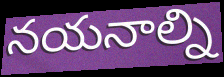
నయనాల్ని